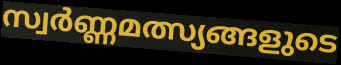
സ്വർണ്ണമത്സ്യങ്ങളുടെ